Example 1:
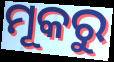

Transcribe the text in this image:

ମୂକରୁ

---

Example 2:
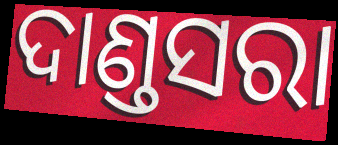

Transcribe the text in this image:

ଦାଣ୍ଡସରା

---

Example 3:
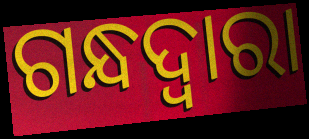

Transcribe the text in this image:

ଗନ୍ଧଦ୍ୱାରା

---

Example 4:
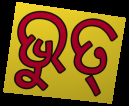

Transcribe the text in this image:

ଭୁତ୍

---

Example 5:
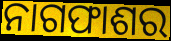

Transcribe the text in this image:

ନାଗଫାଶର